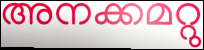
അനക്കമറ്റു